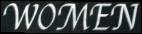
WOMEN